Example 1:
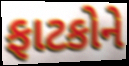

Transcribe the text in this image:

ફાટકોને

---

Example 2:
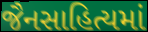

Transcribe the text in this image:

જૈનસાહિત્યમાં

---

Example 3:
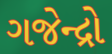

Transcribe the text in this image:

ગજેન્દ્રો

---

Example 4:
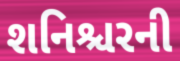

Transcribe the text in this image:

શનિશ્ચરની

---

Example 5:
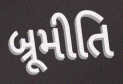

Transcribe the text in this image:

બ્રૂમીતિ